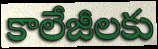
కాలేజీలకు